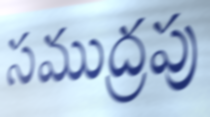
సముద్రపు